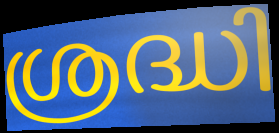
ശ്രദ്ധി